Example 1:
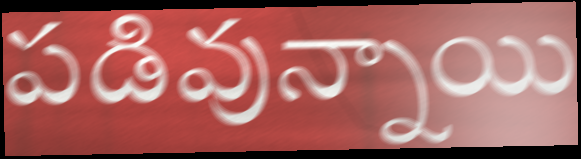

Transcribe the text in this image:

పడివున్నాయి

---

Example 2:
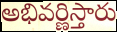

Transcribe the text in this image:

అభివర్ణిస్తారు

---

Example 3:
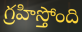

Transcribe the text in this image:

గ్రహిస్తోంది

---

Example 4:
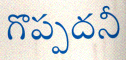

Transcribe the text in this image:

గొప్పదనీ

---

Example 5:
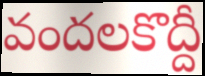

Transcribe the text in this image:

వందలకొద్దీ